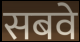
सबवे